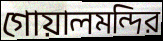
গোয়ালমন্দির